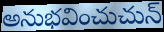
అనుభవించుచున్